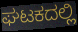
ಘಟಕದಲ್ಲಿ